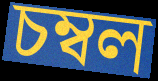
চম্বল